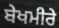
ਬੇਖਮੀਰੇ